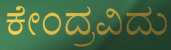
ಕೇಂದ್ರವಿದು